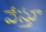
వేస్తూ